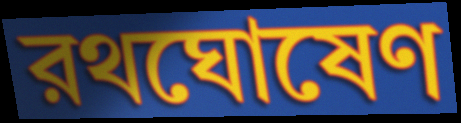
রথঘোষেণ